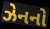
ઝેનનો